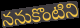
ననుకొంటిని